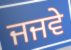
ਜਜਵੇ